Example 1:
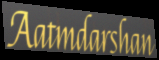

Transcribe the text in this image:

Aatmdarshan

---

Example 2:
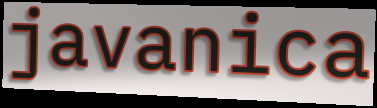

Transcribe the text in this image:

javanica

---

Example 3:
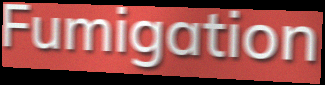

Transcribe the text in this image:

Fumigation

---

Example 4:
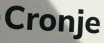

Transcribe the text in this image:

Cronje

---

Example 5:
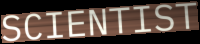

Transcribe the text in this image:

SCIENTIST